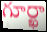
గూర్ఖా